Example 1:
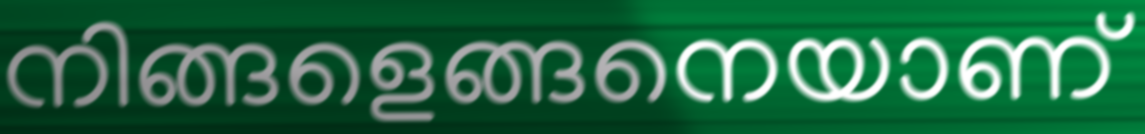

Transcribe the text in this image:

നിങ്ങളെങ്ങനെയാണ്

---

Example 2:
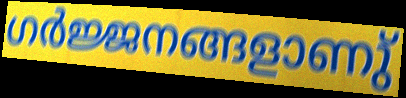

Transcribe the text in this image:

ഗർജ്ജനങ്ങളാണു്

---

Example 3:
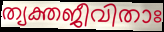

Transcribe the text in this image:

ത്യക്തജീവിതാഃ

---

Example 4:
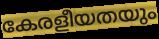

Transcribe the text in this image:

കേരളീയതയും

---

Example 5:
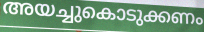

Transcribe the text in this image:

അയച്ചുകൊടുക്കണം